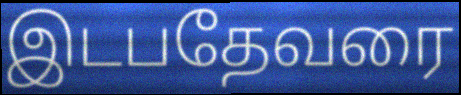
இடபதேவரை